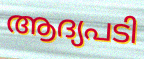
ആദ്യപടി